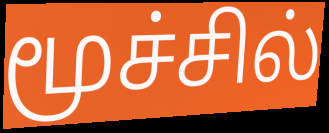
மூச்சில்